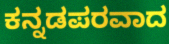
ಕನ್ನಡಪರವಾದ